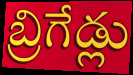
బ్రిగేడ్లు